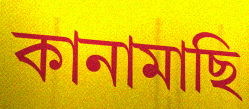
কানামাছি